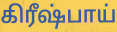
கிரீஷ்பாய்